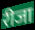
रीजा